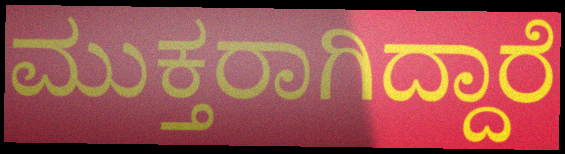
ಮುಕ್ತರಾಗಿದ್ದಾರೆ